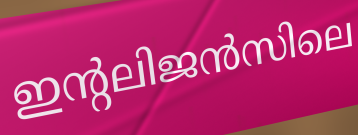
ഇന്റലിജൻസിലെ